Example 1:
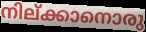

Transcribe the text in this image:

നില്ക്കാനൊരു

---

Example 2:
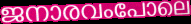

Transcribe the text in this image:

ജനാരവംപോലെ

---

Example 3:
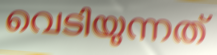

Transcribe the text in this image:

വെടിയുന്നത്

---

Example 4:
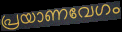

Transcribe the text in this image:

പ്രയാണവേഗം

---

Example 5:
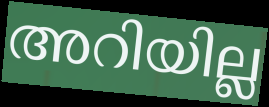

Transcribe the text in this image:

അറിയില്ല